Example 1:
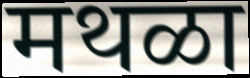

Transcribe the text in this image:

मथळा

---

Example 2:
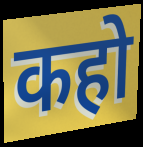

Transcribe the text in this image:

कहो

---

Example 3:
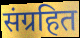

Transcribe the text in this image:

संग्रहित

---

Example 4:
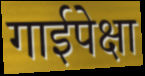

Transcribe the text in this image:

गाईपेक्षा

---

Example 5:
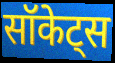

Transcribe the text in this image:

सॉकेट्स